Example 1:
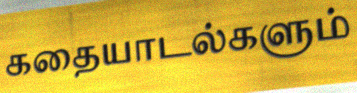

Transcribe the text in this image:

கதையாடல்களும்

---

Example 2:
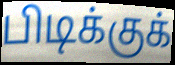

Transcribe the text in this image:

பிடிக்குக்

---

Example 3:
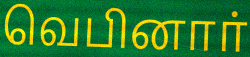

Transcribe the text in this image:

வெபினார்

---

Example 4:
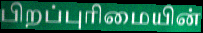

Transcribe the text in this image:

பிறப்புரிமையின்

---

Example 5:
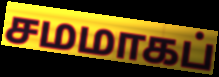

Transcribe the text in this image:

சமமாகப்